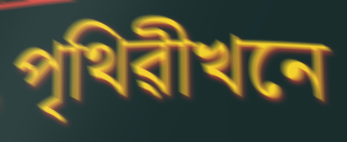
পৃথিৱীখনে